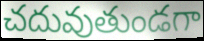
చదువుతుండగా